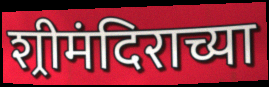
श्रीमंदिराच्या